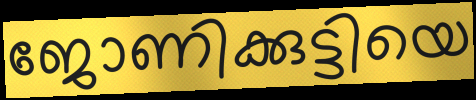
ജോണിക്കുട്ടിയെ